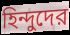
হিন্দুদের